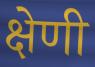
क्षेणी